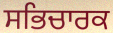
ਸਭਿਚਾਰਕ